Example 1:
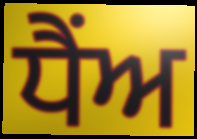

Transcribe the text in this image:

ਧੈਂਅ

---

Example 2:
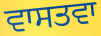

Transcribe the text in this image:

ਵਾਸਤਵਾ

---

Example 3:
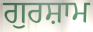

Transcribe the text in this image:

ਗੁਰਸ਼ਾਮ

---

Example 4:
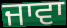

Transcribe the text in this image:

ਜਾਵਾ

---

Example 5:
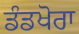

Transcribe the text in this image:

ਡੰਡਖੋਰਾ